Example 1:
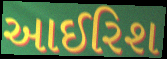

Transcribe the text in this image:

આઈરિશ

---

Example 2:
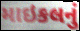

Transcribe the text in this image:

માઇકલનું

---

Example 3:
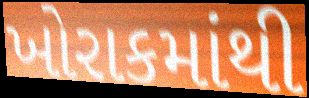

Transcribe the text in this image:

ખોરાકમાંથી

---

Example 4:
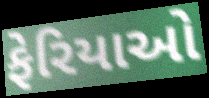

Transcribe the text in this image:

ફેરિયાઓ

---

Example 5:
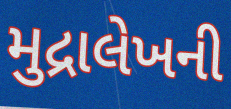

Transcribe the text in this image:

મુદ્રાલેખની